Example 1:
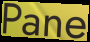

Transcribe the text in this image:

Pane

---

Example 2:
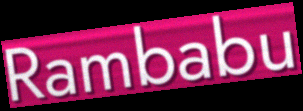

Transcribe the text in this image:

Rambabu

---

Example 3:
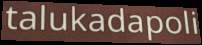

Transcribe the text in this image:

talukadapoli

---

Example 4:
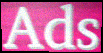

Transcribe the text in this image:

Ads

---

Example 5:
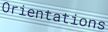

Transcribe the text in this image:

Orientations